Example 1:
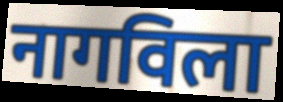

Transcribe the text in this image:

नागविला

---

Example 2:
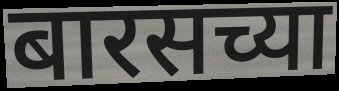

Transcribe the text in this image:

बारसच्या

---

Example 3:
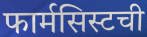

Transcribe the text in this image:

फार्मसिस्टची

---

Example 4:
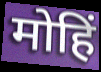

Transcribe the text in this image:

मोहिं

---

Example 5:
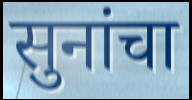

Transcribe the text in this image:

सुनांचा